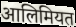
आलिमियत